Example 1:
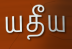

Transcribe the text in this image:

யதீய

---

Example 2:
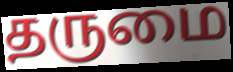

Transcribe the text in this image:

தருமை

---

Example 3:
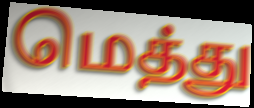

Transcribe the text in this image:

மெத்து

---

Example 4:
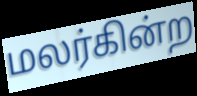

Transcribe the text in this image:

மலர்கின்ற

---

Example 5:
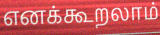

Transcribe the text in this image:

எனக்கூறலாம்